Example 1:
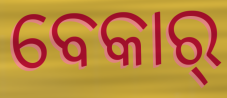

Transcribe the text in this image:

ବେକାର୍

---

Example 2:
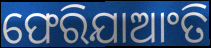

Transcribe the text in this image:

ଫେରିଯାଆଂତି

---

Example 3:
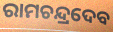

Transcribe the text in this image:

ରାମଚନ୍ଦ୍ରଦେବ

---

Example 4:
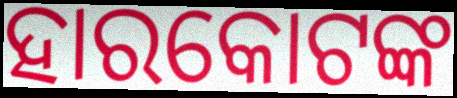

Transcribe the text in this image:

ହାରକୋଟଙ୍କ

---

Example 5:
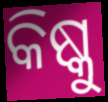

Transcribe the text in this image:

କିଷ୍କୁ